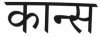
कान्स